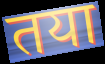
तया